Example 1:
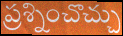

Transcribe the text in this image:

ప్రశ్నించొచ్చు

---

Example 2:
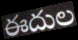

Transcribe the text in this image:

ఈదుల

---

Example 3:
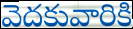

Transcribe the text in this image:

వెదకువారికి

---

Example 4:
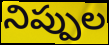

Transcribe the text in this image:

నిప్పుల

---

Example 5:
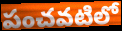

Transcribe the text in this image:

పంచవటిలో